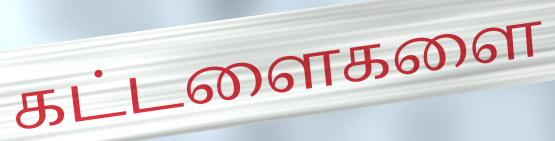
கட்டளைகளை